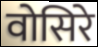
वोसिरे